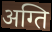
अग्ति